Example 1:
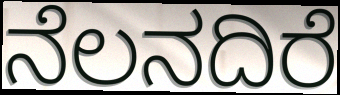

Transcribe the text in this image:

ನೆಲನದಿರೆ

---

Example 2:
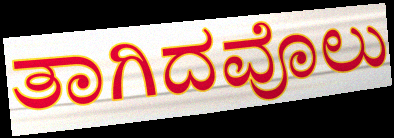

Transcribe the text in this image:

ತಾಗಿದವೊಲು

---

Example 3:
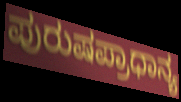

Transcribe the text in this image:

ಪುರುಷಪ್ರಾಧಾನ್ಯ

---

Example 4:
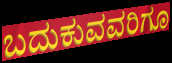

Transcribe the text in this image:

ಬದುಕುವವರಿಗೂ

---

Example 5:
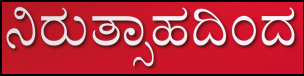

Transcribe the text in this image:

ನಿರುತ್ಸಾಹದಿಂದ